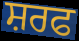
ਸ਼ਰਫ